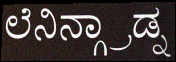
ಲೆನಿನ್ಗ್ರಾಡ್ನ